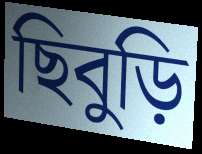
ছিবুড়ি